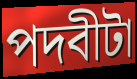
পদবীটা